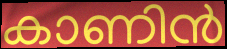
കാണിൻ